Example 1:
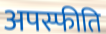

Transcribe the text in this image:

अपस्फीति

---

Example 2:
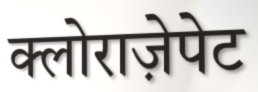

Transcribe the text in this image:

क्लोराज़ेपेट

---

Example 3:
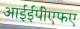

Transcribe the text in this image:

आईईपीएफए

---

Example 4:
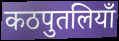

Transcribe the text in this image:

कठपुतलियाँ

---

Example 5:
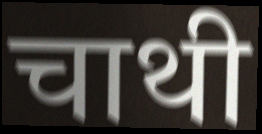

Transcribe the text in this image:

चाथी